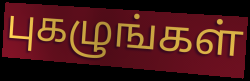
புகழுங்கள்